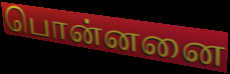
பொன்னனை